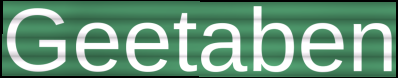
Geetaben